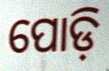
ପୋଡ଼ି